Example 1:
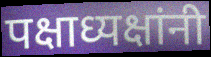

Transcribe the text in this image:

पक्षाध्यक्षांनी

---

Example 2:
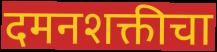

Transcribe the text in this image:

दमनशक्तीचा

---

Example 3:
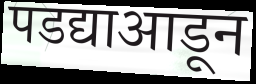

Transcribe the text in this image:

पडद्याआडून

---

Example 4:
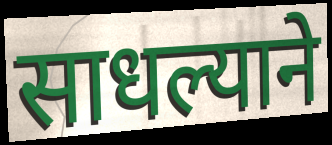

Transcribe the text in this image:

साधल्याने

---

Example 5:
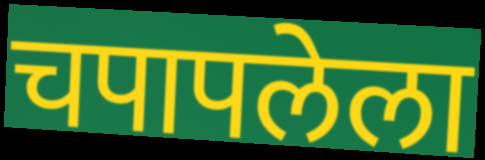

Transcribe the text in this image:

चपापलेला